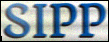
SIPP